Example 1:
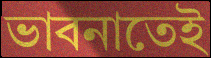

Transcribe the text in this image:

ভাবনাতেই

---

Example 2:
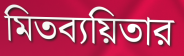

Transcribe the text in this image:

মিতব্যয়িতার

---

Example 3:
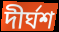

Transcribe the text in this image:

দীর্ঘশ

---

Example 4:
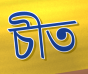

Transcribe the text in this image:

চীত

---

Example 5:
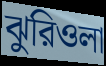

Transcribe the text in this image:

ঝুরিওলা